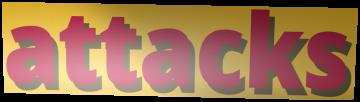
attacks